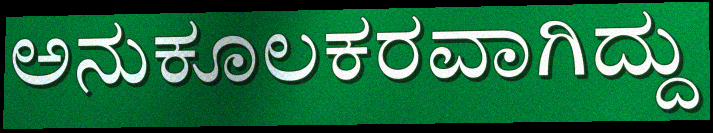
ಅನುಕೂಲಕರವಾಗಿದ್ದು